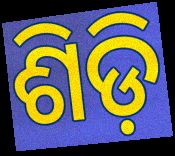
ଶିଡ଼ି